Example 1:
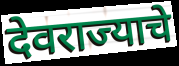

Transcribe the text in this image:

देवराज्याचे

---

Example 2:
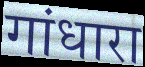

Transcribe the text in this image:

गांधारा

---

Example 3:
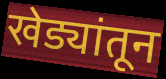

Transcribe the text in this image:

खेड्यांतून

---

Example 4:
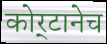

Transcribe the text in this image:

कोर्टानेच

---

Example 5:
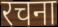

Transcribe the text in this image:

रचना